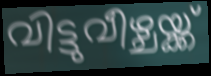
വിട്ടുവീഴ്ചയ്ക്ക്